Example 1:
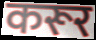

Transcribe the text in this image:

करूर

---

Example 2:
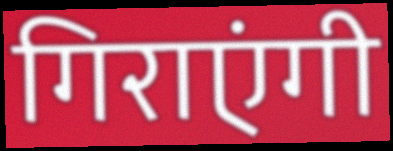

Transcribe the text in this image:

गिराएंगी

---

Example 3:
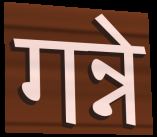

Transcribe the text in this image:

गन्ने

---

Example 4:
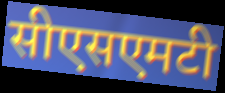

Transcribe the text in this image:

सीएसएमटी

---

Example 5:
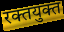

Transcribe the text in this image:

रक्तयुक्त